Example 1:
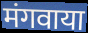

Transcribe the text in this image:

मंगवाया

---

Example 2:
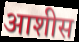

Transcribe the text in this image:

आशीस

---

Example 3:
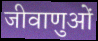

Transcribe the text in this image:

जीवाणुओं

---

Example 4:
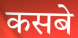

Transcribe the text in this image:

कसबे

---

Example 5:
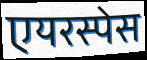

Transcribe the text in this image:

एयरस्पेस